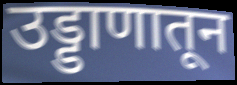
उड्डाणातून